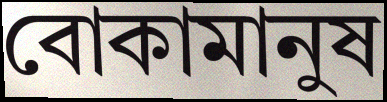
বোকামানুষ